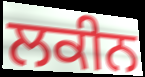
ਲਕੀਨ